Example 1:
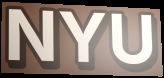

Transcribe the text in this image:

NYU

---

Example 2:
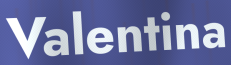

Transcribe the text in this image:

Valentina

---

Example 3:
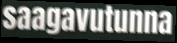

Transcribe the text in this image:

saagavutunna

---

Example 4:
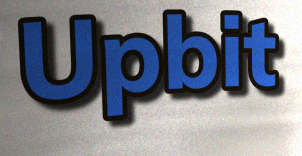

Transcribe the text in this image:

Upbit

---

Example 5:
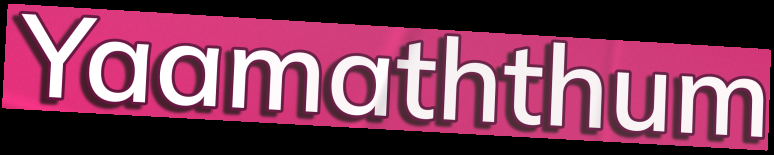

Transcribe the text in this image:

Yaamaththum